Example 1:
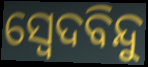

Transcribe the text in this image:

ସ୍ୱେଦବିନ୍ଦୁ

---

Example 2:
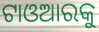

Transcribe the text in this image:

ଟାଓଆରକୁ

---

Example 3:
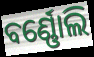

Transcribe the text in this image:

ବର୍ଣ୍ଣୋଲି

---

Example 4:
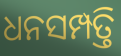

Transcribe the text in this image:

ଧନସମ୍ପତ୍ତି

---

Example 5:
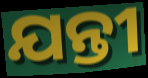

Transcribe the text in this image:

ଯନ୍ତୀ